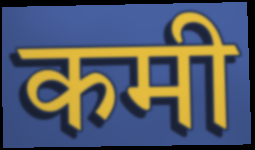
कमी